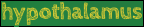
hypothalamus